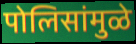
पोलिसांमुळे